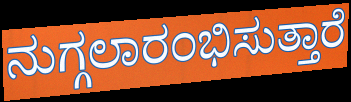
ನುಗ್ಗಲಾರಂಭಿಸುತ್ತಾರೆ